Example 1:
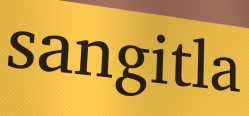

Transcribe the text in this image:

sangitla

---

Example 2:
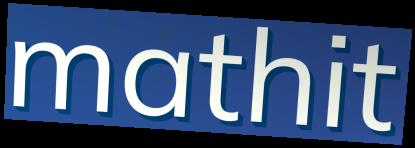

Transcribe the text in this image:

mathit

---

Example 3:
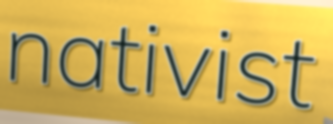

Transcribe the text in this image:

nativist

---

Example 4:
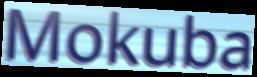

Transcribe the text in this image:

Mokuba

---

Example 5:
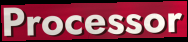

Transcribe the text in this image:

Processor